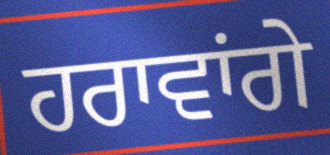
ਹਰਾਵਾਂਗੇ